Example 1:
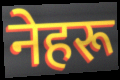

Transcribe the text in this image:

नेहरू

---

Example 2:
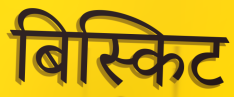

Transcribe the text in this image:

बिस्किट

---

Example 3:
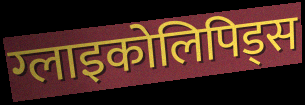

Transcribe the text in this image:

ग्लाइकोलिपिड्स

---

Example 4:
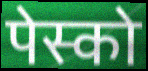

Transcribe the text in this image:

पेस्को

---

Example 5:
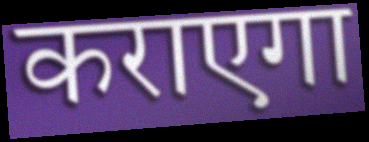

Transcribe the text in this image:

कराएगा